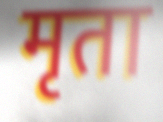
मृता